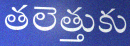
తలెత్తుకు